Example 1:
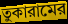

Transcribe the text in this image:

তুকারামের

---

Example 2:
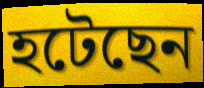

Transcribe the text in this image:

হটেছেন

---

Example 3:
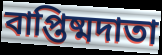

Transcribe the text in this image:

বাপ্তিষ্মদাতা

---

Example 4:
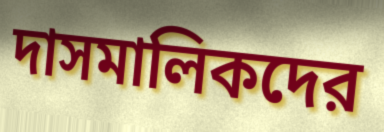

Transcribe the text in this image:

দাসমালিকদের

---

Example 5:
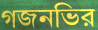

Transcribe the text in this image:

গজনভির